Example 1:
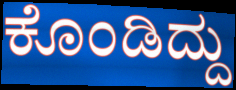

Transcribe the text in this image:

ಕೊಂಡಿದ್ದು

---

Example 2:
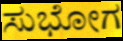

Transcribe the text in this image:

ಸುಭೋಗ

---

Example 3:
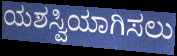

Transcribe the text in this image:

ಯಶಸ್ವಿಯಾಗಿಸಲು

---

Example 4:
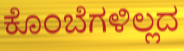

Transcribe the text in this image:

ಕೊಂಬೆಗಳಿಲ್ಲದ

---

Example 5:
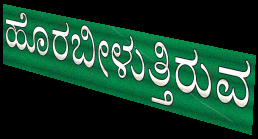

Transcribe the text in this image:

ಹೊರಬೀಳುತ್ತಿರುವ